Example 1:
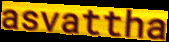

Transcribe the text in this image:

asvattha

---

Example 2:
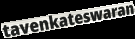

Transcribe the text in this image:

tavenkateswaran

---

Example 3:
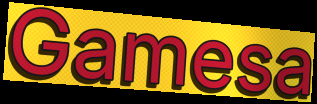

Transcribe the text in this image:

Gamesa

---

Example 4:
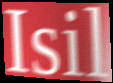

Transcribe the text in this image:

Isil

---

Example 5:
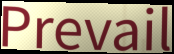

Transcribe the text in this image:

Prevail